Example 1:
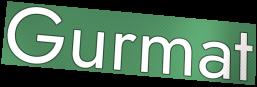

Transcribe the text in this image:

Gurmat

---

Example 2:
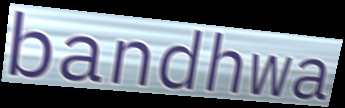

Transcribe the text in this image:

bandhwa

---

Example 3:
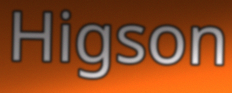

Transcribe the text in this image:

Higson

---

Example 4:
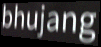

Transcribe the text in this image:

bhujang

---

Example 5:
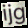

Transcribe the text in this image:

ijg